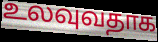
உலவுவதாக